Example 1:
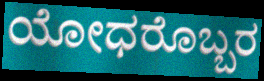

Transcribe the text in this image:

ಯೋಧರೊಬ್ಬರ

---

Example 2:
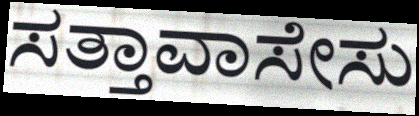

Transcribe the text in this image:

ಸತ್ತಾವಾಸೇಸು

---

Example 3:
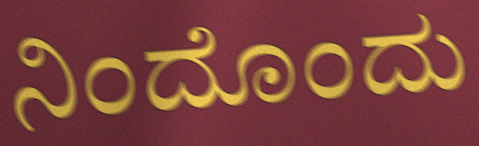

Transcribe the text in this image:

ನಿಂದೊಂದು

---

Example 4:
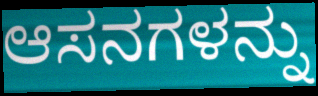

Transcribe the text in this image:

ಆಸನಗಳನ್ನು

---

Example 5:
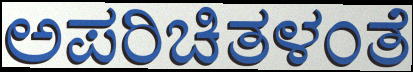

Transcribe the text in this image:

ಅಪರಿಚಿತಳಂತೆ